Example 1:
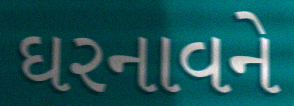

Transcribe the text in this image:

ઘરનાવને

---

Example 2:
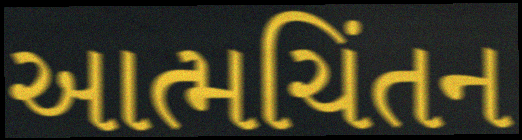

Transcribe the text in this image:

આત્મચિંતન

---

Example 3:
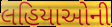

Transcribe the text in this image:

લહિયાઓની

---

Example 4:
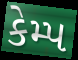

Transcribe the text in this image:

કેમ્પ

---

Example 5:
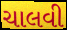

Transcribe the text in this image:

ચાલવી